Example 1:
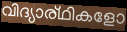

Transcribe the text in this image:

വിദ്യാര്ഥികളോ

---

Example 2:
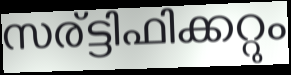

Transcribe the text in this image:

സര്ട്ടിഫിക്കറ്റും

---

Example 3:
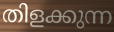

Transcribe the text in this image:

തിളക്കുന്ന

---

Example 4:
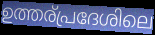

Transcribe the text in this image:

ഉത്തര്പ്രദേശിലെ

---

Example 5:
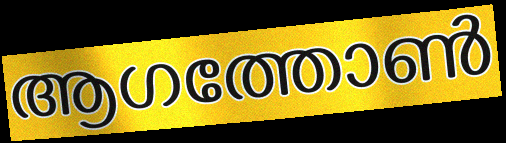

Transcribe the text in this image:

ആഗത്തോൺ